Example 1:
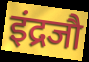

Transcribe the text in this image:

इंद्रजौ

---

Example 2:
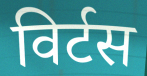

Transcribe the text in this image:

विर्टस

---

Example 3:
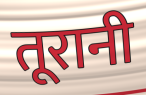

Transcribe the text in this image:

तूरानी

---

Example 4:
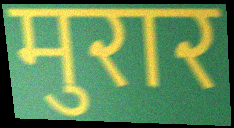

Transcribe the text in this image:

मुरार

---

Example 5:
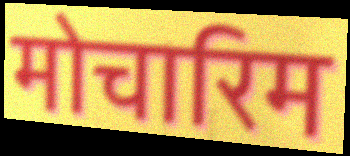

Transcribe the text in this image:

मोचारिम